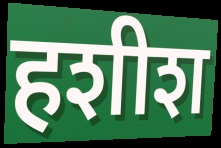
हशीश